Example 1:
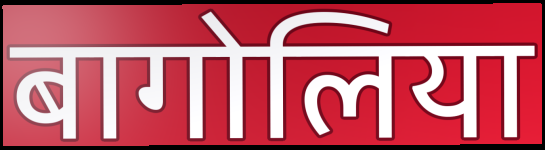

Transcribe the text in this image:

बागोलिया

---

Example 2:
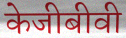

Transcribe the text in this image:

केजीबीवी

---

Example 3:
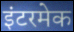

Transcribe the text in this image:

इंटरमेक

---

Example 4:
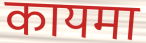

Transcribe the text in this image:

कायमा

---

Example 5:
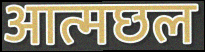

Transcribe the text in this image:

आत्मछल